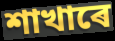
শাখাৰে